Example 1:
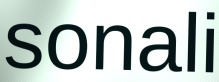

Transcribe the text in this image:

sonali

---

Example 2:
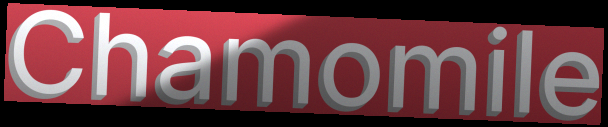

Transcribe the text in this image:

Chamomile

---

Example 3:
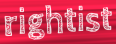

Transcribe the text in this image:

rightist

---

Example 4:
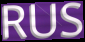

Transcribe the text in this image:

RUS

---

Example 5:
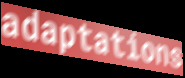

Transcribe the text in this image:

adaptations